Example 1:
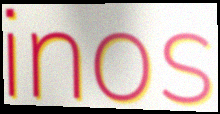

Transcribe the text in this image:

inos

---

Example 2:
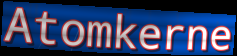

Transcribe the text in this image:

Atomkerne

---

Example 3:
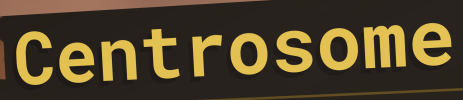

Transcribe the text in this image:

Centrosome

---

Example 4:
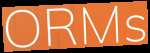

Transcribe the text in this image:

ORMs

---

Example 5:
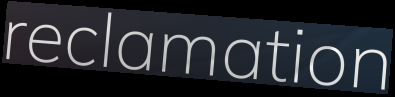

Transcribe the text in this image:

reclamation